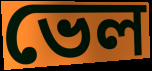
ভেল